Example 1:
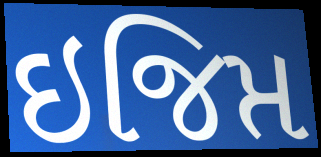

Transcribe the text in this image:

ઇજિપ્ત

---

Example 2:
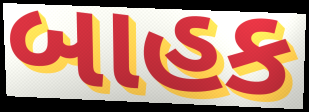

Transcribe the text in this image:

બાહક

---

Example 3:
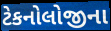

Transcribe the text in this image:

ટેકનોલોજીના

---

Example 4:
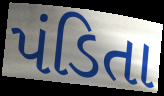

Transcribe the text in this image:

પંડિતા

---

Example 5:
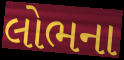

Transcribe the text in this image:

લોભના